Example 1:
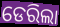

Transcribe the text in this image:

ଡେରିଲା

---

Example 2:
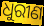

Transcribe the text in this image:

ଧୁରୀଣ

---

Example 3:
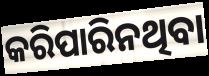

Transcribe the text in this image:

କରିପାରିନଥିବା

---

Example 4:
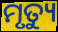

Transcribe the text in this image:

ମୃତ୍ୟୁ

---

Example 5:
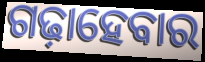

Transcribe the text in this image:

ଗଢ଼ାହେବାର